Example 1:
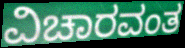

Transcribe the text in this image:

ವಿಚಾರವಂತ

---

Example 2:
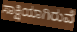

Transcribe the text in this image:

ಸಾಕ್ಷಿಯಾಗಿರುವೆ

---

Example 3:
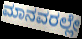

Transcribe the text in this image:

ಮಾನವರಲ್ಲೇ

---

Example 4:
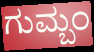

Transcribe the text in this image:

ಗುಮ್ಬಂ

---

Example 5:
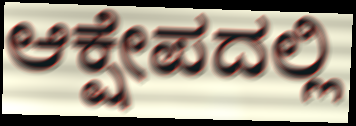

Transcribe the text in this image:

ಆಕ್ಷೇಪದಲ್ಲಿ